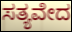
ಸತ್ಯವೇದ